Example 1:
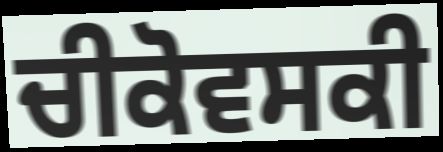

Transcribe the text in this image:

ਚੀਕੋਵਸਕੀ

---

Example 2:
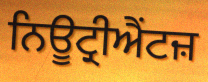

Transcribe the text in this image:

ਨਿਊਟ੍ਰੀਐਂਟਜ਼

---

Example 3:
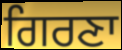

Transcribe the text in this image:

ਗਿਰਣਾ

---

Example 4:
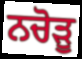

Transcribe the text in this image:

ਨਚੋੜੂ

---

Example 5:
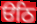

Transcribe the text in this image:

ੳਠਿ